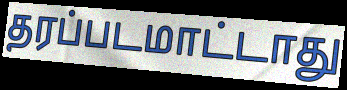
தரப்படமாட்டாது